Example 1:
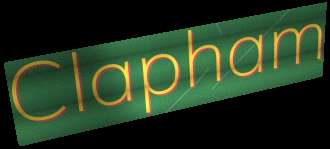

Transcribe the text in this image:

Clapham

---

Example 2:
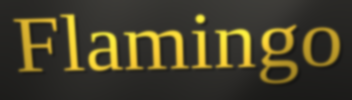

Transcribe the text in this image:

Flamingo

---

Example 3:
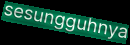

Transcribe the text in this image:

sesungguhnya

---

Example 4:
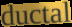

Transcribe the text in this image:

ductal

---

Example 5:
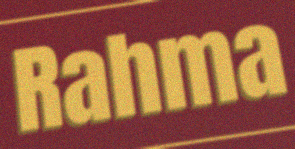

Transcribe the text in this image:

Rahma